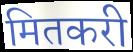
मितकरी